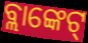
ବ୍ଲାଙ୍କେଟ୍